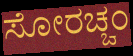
ಸೋರಚ್ಚಂ